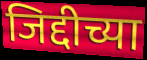
जिद्दीच्या